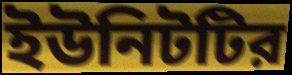
ইউনিটটির